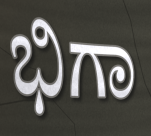
ಭಿಗಾ